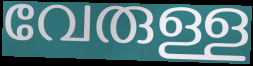
വേരുള്ള